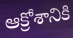
ఆక్రోశానికి